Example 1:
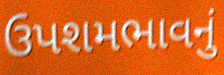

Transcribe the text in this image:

ઉપશમભાવનું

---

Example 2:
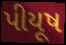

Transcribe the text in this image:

પીયૂષ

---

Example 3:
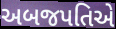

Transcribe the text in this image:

અબજપતિએ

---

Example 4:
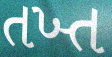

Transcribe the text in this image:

તખ્ત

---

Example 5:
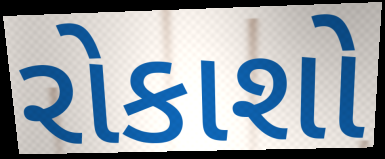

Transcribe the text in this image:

રોકાશો